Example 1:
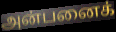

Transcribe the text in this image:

அன்பனைக்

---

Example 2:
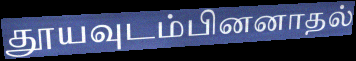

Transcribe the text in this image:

தூயவுடம்பினனாதல்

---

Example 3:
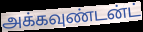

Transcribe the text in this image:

அக்கவுண்டன்ட்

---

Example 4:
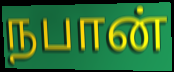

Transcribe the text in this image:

நபான்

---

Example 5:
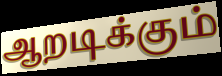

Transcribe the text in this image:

ஆறடிக்கும்